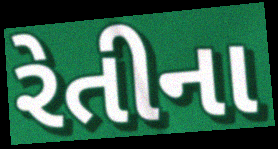
રેતીના